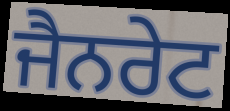
ਜੈਨਰੇਟ